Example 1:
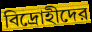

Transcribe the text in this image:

বিদ্রোহীদের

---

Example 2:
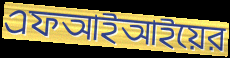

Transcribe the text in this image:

এফআইআইয়ের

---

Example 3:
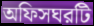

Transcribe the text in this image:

অফিসঘরটি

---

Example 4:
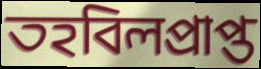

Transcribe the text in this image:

তহবিলপ্রাপ্ত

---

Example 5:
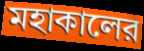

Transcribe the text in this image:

মহাকালের